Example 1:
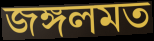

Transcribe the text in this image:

জঙ্গলমত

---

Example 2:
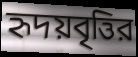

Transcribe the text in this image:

হৃদয়বৃত্তির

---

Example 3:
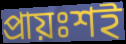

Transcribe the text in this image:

প্রায়ঃশই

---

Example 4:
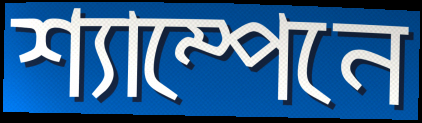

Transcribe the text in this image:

শ্যাম্পেনে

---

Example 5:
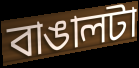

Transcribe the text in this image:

বাঙালটা